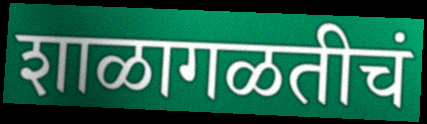
शाळागळतीचं